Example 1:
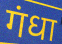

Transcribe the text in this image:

गंधा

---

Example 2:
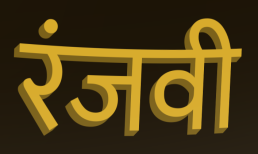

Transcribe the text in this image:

रंजवी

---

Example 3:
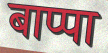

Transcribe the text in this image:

बाप्पा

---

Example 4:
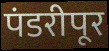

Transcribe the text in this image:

पंडरीपूर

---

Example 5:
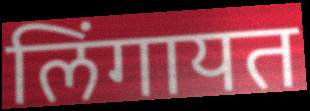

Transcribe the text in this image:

लिंगायत